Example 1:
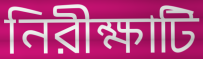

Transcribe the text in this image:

নিরীক্ষাটি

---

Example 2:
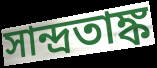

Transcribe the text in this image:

সান্দ্রতাঙ্ক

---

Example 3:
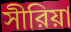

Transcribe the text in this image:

সীরিয়া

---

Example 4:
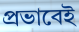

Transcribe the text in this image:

প্রভাবেই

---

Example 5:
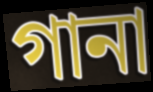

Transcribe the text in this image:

গানা